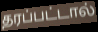
தரப்பட்டால்